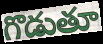
గొడుతూ